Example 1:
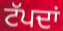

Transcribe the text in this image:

ਟੱਪਦਾਂ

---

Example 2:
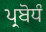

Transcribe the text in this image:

ਪ੍ਰਬੋਧੰ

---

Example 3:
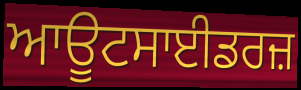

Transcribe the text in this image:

ਆਊਟਸਾਈਡਰਜ਼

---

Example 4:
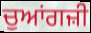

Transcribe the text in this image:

ਚੁਆਂਗਜ਼ੀ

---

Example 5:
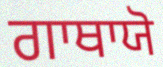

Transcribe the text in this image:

ਗਾਥਾਯੋ